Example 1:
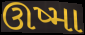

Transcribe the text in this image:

ઊષ્મા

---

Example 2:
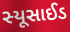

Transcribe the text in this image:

સ્યૂસાઈડ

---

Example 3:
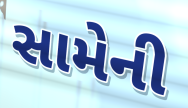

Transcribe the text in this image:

સામેની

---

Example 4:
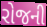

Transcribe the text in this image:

રોજની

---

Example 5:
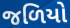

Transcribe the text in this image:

જળિયો